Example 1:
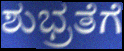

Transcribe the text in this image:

ಶುಭ್ರತೆಗೆ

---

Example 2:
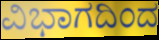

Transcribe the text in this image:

ವಿಭಾಗದಿಂದ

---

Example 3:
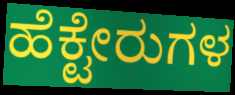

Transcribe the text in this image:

ಹೆಕ್ಟೇರುಗಳ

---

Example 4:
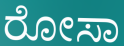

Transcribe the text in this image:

ರೋಸಾ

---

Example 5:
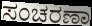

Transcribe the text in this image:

ಸಂಚರಣಾ